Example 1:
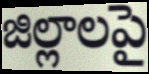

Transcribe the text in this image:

జిల్లాలపై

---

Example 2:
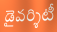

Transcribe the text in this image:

డైవర్శిటీ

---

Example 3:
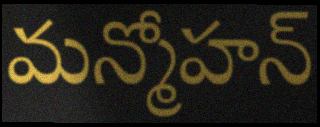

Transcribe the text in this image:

మన్మోహన్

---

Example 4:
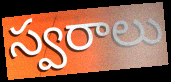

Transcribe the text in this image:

స్వరాలు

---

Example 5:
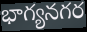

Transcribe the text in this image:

భాగ్యనగర